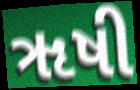
ૠષી